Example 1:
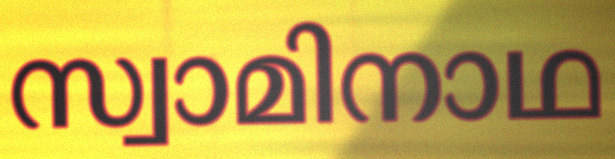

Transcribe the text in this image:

സ്വാമിനാഥ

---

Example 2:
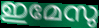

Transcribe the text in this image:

ഇമേസു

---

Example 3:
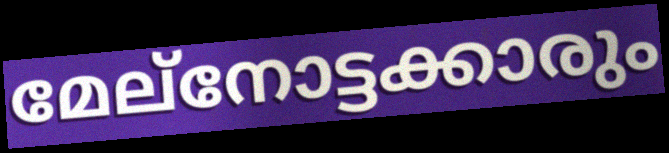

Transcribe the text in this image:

മേല്നോട്ടക്കാരും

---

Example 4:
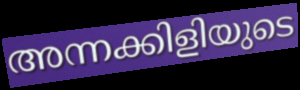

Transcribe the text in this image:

അന്നക്കിളിയുടെ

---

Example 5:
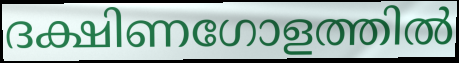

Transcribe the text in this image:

ദക്ഷിണഗോളത്തിൽ